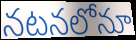
నటనలోనూ